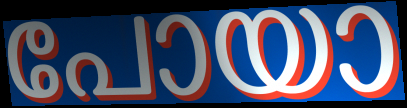
പോയാ